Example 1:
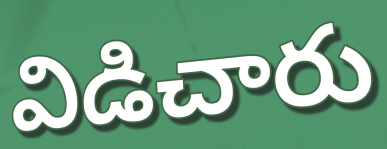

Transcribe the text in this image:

విడిచారు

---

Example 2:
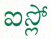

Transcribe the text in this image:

ఐస్లో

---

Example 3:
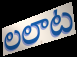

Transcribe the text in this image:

లలాట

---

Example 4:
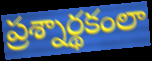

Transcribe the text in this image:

ప్రశ్నార్థకంలా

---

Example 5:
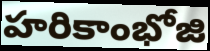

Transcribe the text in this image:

హరికాంభోజి